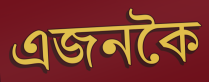
এজনকৈ